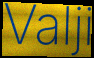
Valji